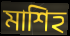
মাশিহ